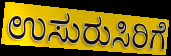
ಉಸುರುಸಿರಿಗೆ